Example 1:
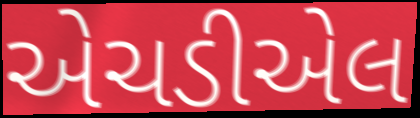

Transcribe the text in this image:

એચડીએલ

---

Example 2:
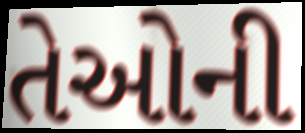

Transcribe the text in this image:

તેઓની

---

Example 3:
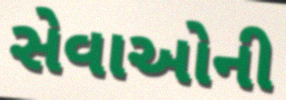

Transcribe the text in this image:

સેવાઓની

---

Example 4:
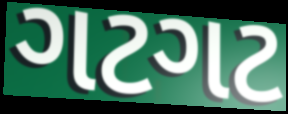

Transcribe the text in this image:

ગટગટ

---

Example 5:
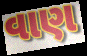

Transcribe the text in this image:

વાણ